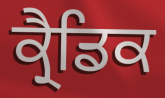
ਕ੍ਰੈਡਿਕ